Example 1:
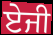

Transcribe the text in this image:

ਏਜੀ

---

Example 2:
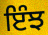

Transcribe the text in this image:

ਇੰਝ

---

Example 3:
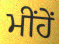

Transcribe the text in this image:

ਮੀਂਹੇਂ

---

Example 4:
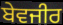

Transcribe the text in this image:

ਬੇਵਜੀਰ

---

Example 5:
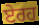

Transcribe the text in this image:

ਏਰਹ